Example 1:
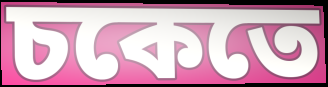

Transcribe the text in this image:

চকেতে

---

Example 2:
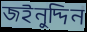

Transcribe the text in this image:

জইনুদ্দিন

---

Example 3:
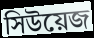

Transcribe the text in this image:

সিউয়েজ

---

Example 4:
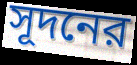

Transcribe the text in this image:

সূদনের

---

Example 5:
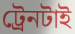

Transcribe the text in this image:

ট্রেনটাই